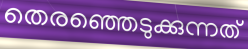
തെരഞ്ഞെടുക്കുന്നത്